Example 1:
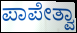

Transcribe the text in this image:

ಪಾಪೇತ್ವಾ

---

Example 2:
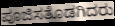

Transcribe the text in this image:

ಪೂಜಿಸತೊಡಗಿದರು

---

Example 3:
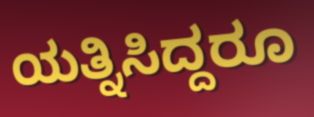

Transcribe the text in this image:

ಯತ್ನಿಸಿದ್ದರೂ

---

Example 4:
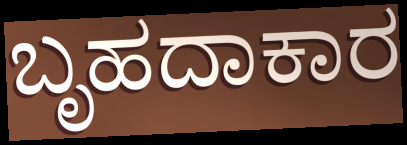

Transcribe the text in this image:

ಬೃಹದಾಕಾರ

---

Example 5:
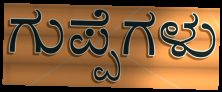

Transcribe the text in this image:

ಗುಪ್ಪೆಗಳು